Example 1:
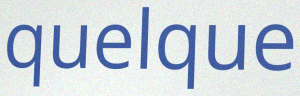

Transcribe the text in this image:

quelque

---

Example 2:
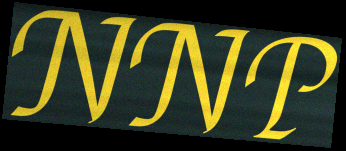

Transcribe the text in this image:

NNP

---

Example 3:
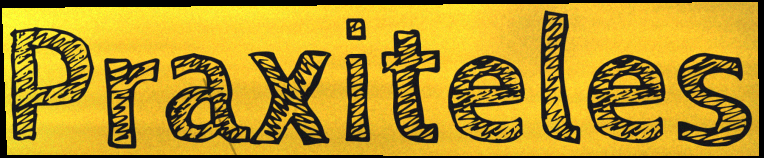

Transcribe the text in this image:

Praxiteles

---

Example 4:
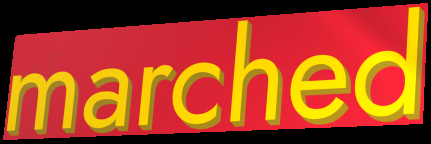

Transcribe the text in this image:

marched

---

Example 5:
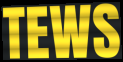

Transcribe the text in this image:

TEWS